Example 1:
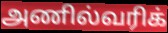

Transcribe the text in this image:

அணில்வரிக்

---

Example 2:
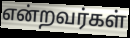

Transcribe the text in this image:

என்றவர்கள்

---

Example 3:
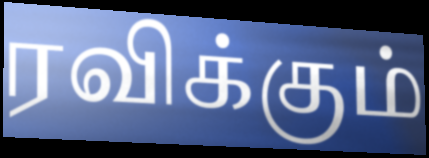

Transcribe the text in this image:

ரவிக்கும்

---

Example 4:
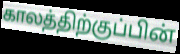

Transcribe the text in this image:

காலத்திற்குப்பின்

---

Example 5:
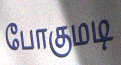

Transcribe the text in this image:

போகுமடி